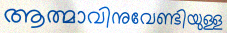
ആത്മാവിനുവേണ്ടിയുള്ള